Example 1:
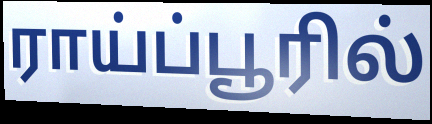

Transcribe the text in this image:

ராய்ப்பூரில்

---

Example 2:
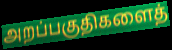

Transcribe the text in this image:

அறப்பகுதிகளைத்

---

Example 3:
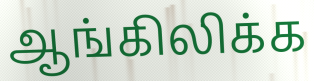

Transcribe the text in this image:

ஆங்கிலிக்க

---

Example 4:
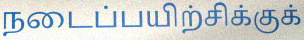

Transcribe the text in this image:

நடைப்பயிற்சிக்குக்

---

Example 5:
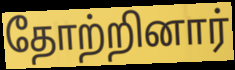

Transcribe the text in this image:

தோற்றினார்